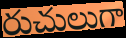
రుచులుగా